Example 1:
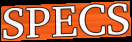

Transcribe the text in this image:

SPECS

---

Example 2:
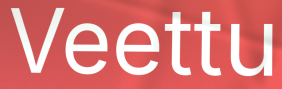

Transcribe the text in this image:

Veettu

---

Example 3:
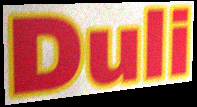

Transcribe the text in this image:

Duli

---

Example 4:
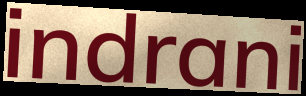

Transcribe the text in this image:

indrani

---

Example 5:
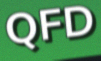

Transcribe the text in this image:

QFD